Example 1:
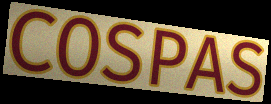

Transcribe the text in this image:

COSPAS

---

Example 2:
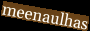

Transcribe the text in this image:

meenaulhas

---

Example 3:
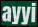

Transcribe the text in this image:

ayyi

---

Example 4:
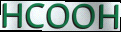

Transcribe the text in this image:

HCOOH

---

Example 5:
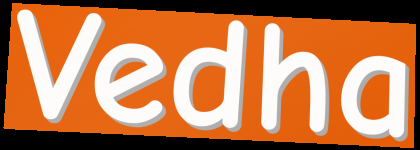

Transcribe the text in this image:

Vedha